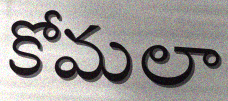
కోమలా